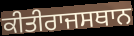
ਕੀਤੀਰਾਜਸਥਾਨ